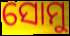
ସୋମୁ